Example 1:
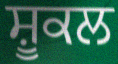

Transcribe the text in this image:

ਸ਼ੂਕਲ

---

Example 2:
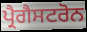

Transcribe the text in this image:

ਪ੍ਰੈਗੈਸਟਰੋਨ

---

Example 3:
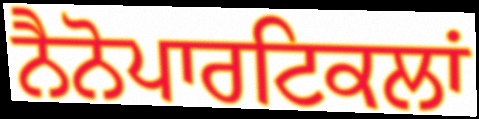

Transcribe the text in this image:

ਨੈਨੋਪਾਰਟਿਕਲਾਂ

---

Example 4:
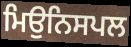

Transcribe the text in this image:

ਮਿਉਨਿਸਪਲ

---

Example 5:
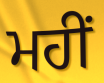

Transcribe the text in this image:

ਮਹੀਂ